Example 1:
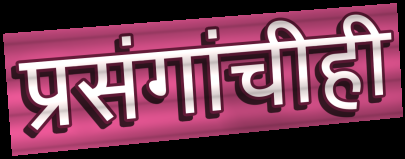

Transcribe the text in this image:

प्रसंगांचीही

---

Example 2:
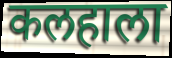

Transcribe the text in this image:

कलहाला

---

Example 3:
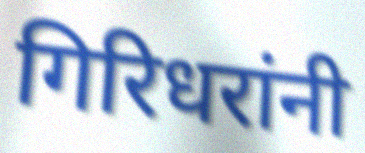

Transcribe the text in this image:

गिरिधरांनी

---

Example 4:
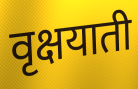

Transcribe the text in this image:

वृक्षयाती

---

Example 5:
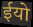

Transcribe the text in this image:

ईयो